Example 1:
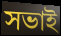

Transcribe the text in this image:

সভাই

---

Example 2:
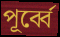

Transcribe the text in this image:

পূৰ্ব্বে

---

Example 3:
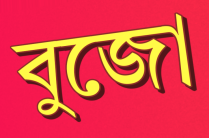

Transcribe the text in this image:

বুজো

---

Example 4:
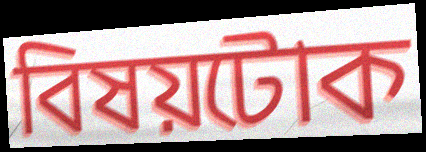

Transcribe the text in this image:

বিষয়টোক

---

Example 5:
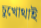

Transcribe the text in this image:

চুখোথাই